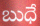
బుధే